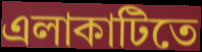
এলাকাটিতে